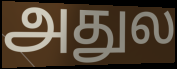
அதுல